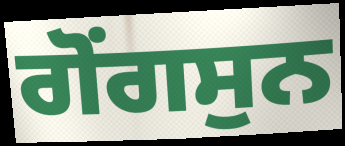
ਗੋਂਗਸੁਨ